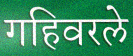
गहिवरले